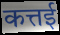
कत्तई